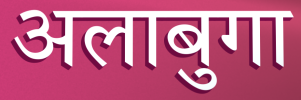
अलाबुगा